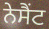
ਨੇਸੈਂਟ